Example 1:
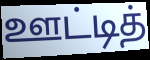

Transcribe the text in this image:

ஊட்டித்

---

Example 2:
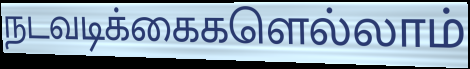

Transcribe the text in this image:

நடவடிக்கைகளெல்லாம்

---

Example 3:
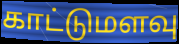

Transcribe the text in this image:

காட்டுமளவு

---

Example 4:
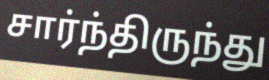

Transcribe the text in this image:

சார்ந்திருந்து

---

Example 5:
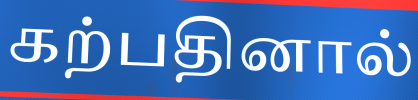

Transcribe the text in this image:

கற்பதினால்